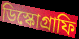
ডিস্কোগ্রাফি